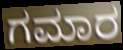
ಗಮಾರ